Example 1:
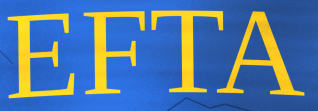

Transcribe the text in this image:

EFTA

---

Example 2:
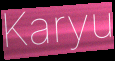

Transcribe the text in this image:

Karyu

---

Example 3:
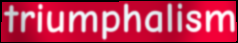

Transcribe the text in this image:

triumphalism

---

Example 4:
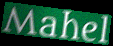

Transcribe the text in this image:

Mahel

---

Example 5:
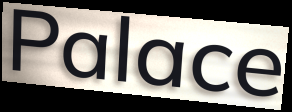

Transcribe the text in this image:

Palace